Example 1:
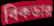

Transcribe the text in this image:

বিকডার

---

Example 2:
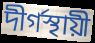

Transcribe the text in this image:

দীর্গস্থায়ী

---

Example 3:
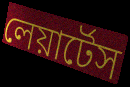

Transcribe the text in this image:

লেয়ার্টেস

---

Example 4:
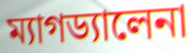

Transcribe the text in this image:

ম্যাগড্যালেনা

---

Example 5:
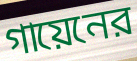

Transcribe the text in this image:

গায়েনের